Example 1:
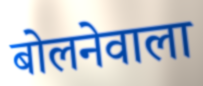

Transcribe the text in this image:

बोलनेवाला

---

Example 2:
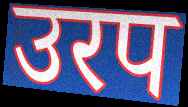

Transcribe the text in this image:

उरप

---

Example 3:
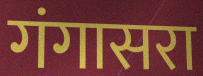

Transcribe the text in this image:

गंगासरा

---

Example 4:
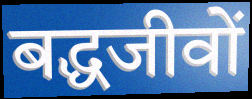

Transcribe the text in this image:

बद्धजीवों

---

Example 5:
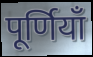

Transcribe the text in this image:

पूर्णियाँ